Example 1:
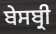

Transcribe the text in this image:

ਬੇਸਬ੍ਰੀ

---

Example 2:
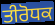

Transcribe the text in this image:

ਤੀਰੋਧਕ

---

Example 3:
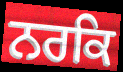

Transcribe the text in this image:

ਨਰਕਿ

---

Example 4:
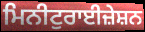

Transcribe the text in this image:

ਮਿਨੀਟੁਰਾਈਜ਼ੇਸ਼ਨ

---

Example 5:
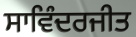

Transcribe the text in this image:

ਸਾਵਿੰਦਰਜੀਤ